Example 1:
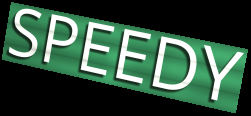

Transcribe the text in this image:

SPEEDY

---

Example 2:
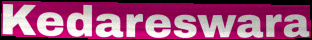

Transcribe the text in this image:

Kedareswara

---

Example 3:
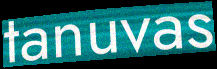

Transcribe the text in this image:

tanuvas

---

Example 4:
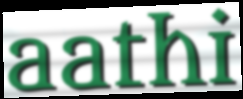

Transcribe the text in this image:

aathi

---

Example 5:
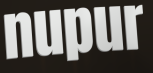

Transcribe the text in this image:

nupur